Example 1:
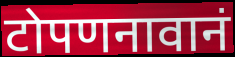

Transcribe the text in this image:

टोपणनावानं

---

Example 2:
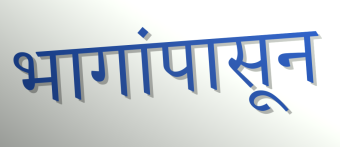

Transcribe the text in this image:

भागांपासून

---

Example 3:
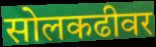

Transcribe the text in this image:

सोलकढीवर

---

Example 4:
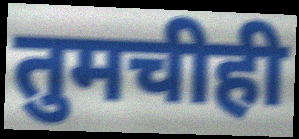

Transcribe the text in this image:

तुमचीही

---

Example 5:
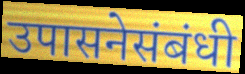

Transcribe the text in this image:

उपासनेसंबंधी